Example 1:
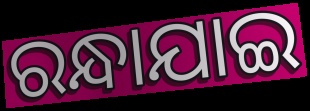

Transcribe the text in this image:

ରନ୍ଧାଯାଇ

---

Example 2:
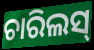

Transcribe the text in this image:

ଚାରିଲସ୍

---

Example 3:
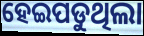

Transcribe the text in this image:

ହେଇପଡୁଥିଲା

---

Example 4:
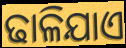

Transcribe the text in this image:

ଢାଳିଯାଏ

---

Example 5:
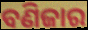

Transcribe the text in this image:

ବଣିଜାର